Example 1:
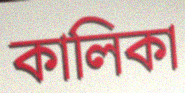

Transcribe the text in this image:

কালিকা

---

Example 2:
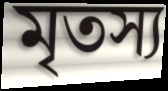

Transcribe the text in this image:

মৃতস্য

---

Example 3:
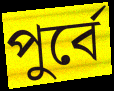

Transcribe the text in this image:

পুর্বে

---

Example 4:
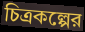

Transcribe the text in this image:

চিত্রকল্পের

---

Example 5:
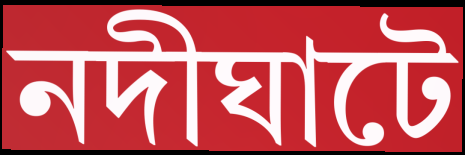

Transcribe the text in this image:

নদীঘাটে